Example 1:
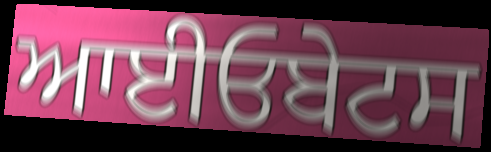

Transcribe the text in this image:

ਆਈਓਬੇਟਸ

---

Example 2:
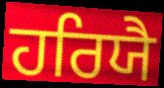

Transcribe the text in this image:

ਹਰਿਯੈ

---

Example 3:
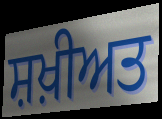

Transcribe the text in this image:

ਸ਼ਖ਼ੀਅਤ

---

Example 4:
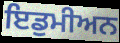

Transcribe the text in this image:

ਇਡੁਮੀਅਨ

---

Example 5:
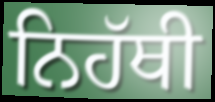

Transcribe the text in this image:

ਨਿਹੱਥੀ